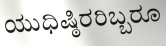
ಯುಧಿಷ್ಠಿರರಿಬ್ಬರೂ